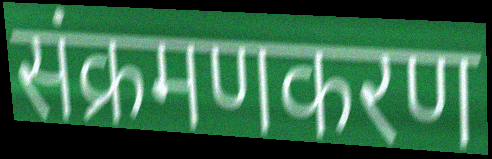
संक्रमणकरण